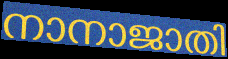
നാനാജാതി